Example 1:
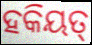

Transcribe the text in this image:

ହକିୟତ୍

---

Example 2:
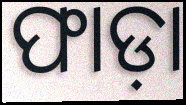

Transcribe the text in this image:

ଫାଡ଼ା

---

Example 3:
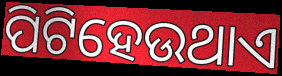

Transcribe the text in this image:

ପିଟିହେଉଥାଏ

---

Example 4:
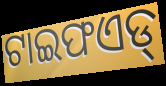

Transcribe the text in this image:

ଟାଇଫଏଡ୍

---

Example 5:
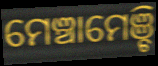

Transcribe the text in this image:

ମେଞ୍ଚାମେଞ୍ଚି